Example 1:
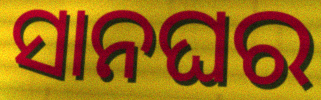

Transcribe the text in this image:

ସାନଘର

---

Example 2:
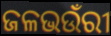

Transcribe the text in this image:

ଜଳଭଉଁରୀ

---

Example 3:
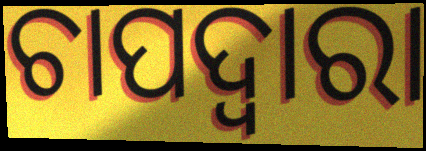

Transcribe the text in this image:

ଚାପଦ୍ବାରା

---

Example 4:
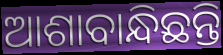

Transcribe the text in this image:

ଆଶାବାନ୍ଧିଛନ୍ତି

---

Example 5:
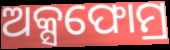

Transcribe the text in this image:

ଅକ୍ସଫୋମ୍ର